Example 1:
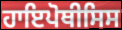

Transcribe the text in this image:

ਹਾਇਪੋਥੀਸਿਸ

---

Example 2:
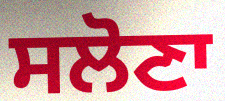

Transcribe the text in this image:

ਸਲੋਣਾ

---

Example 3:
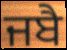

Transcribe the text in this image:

ਜਬੈ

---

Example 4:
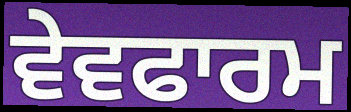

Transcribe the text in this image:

ਵੇਵਫਾਰਮ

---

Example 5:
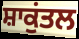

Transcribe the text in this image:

ਸ਼ਾਕੁਂਤਲ